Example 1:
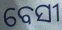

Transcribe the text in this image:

ବେସୀ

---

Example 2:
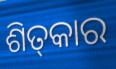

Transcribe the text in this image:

ଶିତ୍‍କାର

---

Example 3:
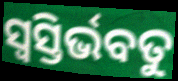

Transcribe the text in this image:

ସ୍ୱସ୍ତିର୍ଭବତୁ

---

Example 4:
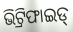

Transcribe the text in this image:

ଭିଟ୍ରିଫାଇଡ୍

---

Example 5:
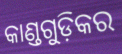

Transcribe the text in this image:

କାଣ୍ଡଗୁଡ଼ିକର